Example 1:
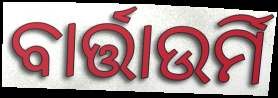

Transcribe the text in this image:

ବାର୍ତ୍ତାଉର୍ମି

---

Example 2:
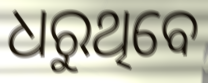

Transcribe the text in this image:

ଧରୁଥିବେ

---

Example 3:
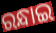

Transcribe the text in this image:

ରନ୍ଧାଇ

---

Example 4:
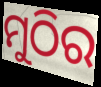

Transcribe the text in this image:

ମୁଠିର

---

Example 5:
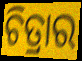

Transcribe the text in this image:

ଚିତ୍ରାର